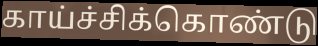
காய்ச்சிக்கொண்டு